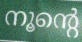
നൂന്റെ